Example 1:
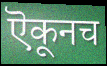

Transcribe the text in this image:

ऎकूनच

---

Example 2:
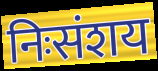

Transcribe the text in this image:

निःसंशय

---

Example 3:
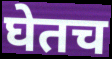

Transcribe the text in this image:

घेतच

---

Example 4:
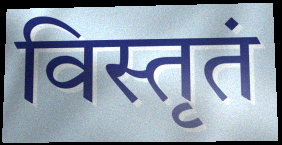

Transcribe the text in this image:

विस्तृतं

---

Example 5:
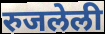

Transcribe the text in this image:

रुजलेली